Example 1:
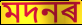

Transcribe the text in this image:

মদনৰ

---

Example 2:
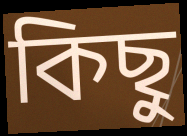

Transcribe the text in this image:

কিছু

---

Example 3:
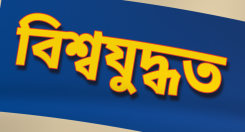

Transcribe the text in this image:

বিশ্বযুদ্ধত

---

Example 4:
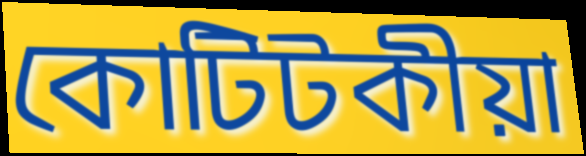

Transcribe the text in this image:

কোটিটকীয়া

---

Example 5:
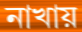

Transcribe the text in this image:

নাখায়